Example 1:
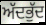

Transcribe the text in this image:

ਅੱਦਭੁੱਦ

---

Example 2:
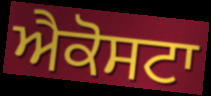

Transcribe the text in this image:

ਐਕੋਸਟਾ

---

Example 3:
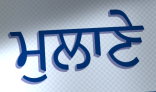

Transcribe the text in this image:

ਮੁਲਾਣੇ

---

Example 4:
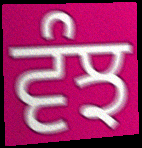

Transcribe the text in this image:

ਵੰਝ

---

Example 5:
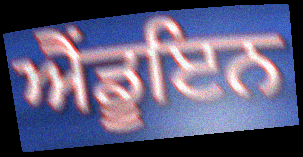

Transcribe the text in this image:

ਐਂਡੂਇਨ